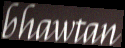
bhawtan